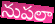
నుపలా